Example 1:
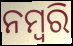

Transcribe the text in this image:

ନମ୍ବରି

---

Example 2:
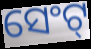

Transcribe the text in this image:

ସେଂଟ୍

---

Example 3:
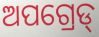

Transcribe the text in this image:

ଅପଗ୍ରେଡ୍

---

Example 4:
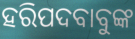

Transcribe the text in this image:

ହରିପଦବାବୁଙ୍କ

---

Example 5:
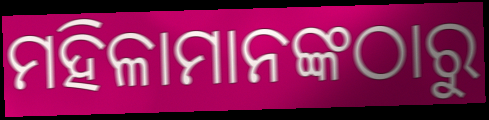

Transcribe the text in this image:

ମହିଳାମାନଙ୍କଠାରୁ